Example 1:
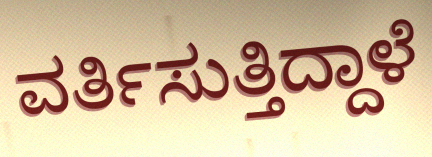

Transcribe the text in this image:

ವರ್ತಿಸುತ್ತಿದ್ದಾಳೆ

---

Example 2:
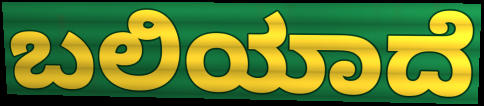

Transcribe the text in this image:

ಬಲಿಯಾದೆ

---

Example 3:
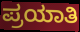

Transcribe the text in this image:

ಪ್ರಯಾತಿ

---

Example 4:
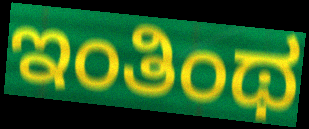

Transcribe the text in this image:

ಇಂತಿಂಥ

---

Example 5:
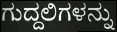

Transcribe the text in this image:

ಗುದ್ದಲಿಗಳನ್ನು